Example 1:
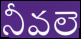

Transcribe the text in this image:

నీవలె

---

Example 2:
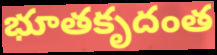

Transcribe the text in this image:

భూతకృదంత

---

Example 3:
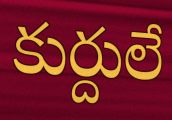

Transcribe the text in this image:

కుర్దులే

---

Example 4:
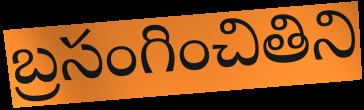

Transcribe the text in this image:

బ్రసంగించితిని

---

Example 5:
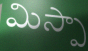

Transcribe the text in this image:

మిస్పా